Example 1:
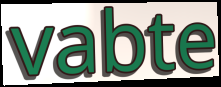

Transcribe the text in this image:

vabte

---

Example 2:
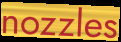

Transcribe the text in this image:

nozzles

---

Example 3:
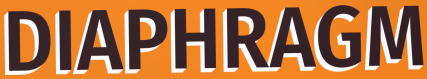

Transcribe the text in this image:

DIAPHRAGM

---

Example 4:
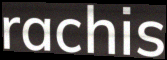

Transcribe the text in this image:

rachis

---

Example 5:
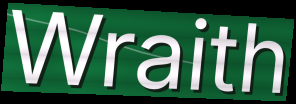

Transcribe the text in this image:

Wraith